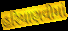
હરિયાણવીમાં